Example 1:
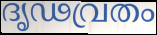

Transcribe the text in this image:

ദൃഢവ്രതം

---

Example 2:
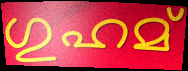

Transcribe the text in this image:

ഗുഹമ്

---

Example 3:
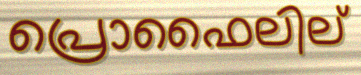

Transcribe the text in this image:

പ്രൊഫൈലില്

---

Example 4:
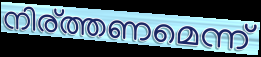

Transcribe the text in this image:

നിര്ത്തണമെന്ന്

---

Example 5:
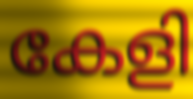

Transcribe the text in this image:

കേളി